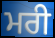
ਮਰੀ